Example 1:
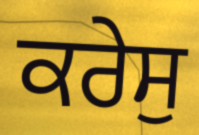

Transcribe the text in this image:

ਕਰੇਸੁ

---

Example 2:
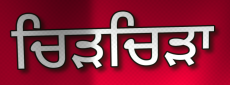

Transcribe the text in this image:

ਚਿੜਚਿੜਾ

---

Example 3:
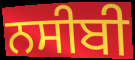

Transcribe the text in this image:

ਨਸੀਬੀ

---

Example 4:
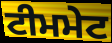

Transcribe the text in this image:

ਟੀਮਮੇਟ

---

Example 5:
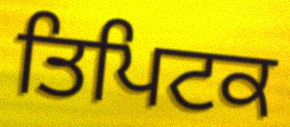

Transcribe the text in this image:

ਤਿਪਿਟਕ